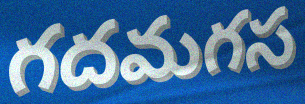
గదమగస